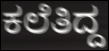
ಕಲೆತಿದ್ದ